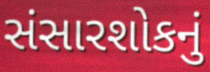
સંસારશોકનું